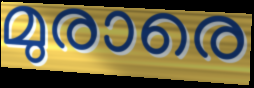
മുരാരെ